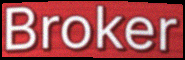
Broker